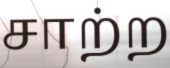
சாற்ற